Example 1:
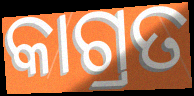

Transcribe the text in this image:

କାଗ୍ରତ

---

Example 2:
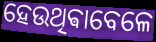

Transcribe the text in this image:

ହେଉଥିଵାବେଳେ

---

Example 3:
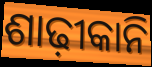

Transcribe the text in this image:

ଶାଢ଼ୀକାନି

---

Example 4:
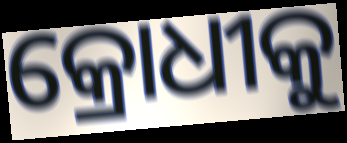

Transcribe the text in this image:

କ୍ରୋଧୀକୁ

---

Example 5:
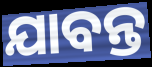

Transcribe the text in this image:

ଯାବନ୍ତ